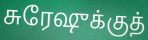
சுரேஷுக்குத்